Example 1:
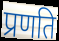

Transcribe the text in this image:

प्रणति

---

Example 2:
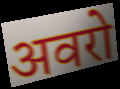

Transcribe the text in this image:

अवरो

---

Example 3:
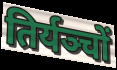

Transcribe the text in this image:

तिर्यञ्चों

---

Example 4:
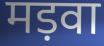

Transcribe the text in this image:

मड़वा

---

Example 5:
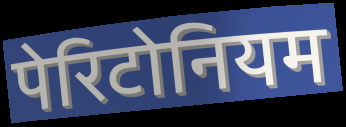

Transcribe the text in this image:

पेरिटोनियम